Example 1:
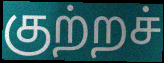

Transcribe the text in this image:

குற்றச்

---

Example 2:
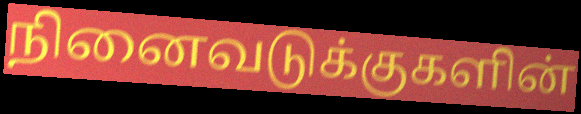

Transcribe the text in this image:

நினைவடுக்குகளின்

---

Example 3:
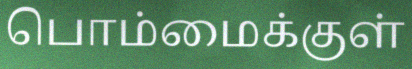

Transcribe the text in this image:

பொம்மைக்குள்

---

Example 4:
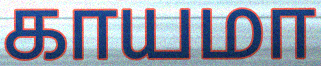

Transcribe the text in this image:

காயமா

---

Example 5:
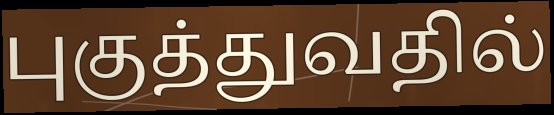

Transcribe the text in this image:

புகுத்துவதில்